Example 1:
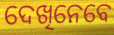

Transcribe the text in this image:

ଦେଖିନେବେ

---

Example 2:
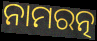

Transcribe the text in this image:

ନାମରତ୍ନ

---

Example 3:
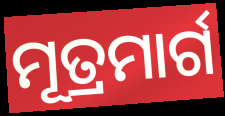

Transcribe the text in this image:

ମୂତ୍ରମାର୍ଗ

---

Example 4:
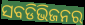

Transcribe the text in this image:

ସବଡିଭିଜନର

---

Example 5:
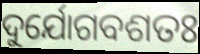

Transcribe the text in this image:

ଦୁର୍ଯୋଗବଶତଃ